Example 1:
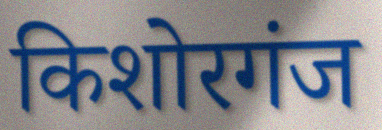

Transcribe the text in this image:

किशोरगंज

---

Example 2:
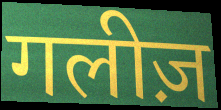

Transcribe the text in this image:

गलीज़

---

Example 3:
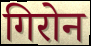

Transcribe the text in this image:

गिरोन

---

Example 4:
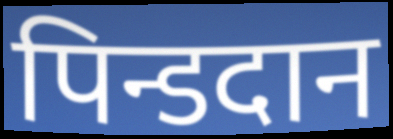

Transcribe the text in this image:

पिन्डदान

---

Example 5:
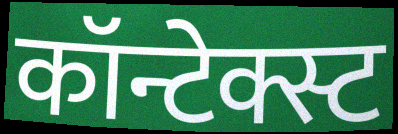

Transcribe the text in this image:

कॉन्टेक्स्ट